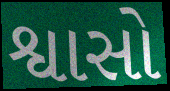
શ્વાસો